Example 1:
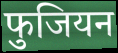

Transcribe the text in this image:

फुजियन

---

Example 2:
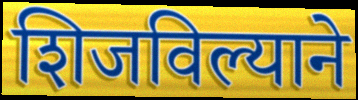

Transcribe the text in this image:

शिजविल्याने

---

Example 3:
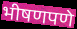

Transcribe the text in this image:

भीषणपणे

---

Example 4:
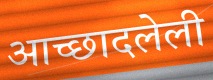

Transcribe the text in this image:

आच्छादलेली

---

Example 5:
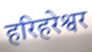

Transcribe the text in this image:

हरिहरेश्वर